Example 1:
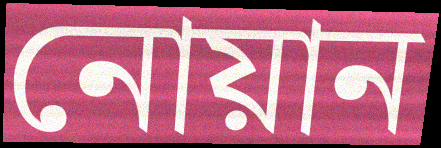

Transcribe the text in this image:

নোয়ান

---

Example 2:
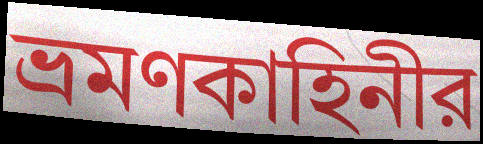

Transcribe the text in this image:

ভ্রমণকাহিনীর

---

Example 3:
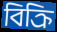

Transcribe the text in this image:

বিক্রি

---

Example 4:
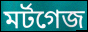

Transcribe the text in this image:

মর্টগেজ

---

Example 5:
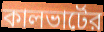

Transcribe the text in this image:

কালভার্টের